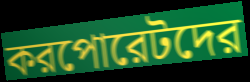
করপোরেটদের